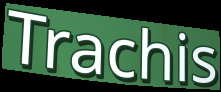
Trachis